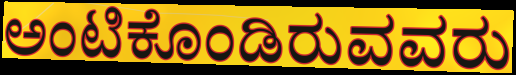
ಅಂಟಿಕೊಂಡಿರುವವರು